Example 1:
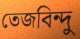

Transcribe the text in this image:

তেজবিন্দু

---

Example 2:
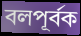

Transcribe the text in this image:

বলপূর্বক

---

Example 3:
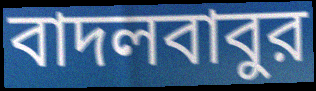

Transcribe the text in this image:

বাদলবাবুর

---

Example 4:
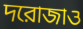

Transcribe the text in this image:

দরোজাও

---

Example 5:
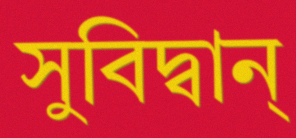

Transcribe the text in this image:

সুবিদ্বান্